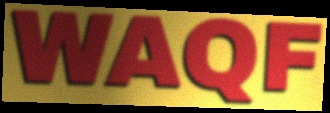
WAQF